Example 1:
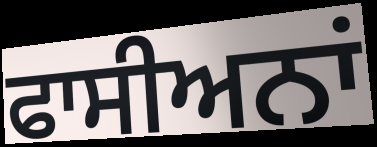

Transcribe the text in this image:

ਫਾਸੀਅਨਾਂ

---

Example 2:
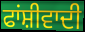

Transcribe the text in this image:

ਫਾਂਸ਼ੀਵਾਦੀ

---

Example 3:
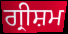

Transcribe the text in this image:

ਗ੍ਰੀਸ਼ਮ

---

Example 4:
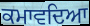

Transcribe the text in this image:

ਕਮਾਵਦਿਆ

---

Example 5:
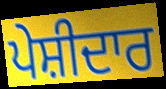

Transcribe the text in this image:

ਪੇਸ਼ੀਦਾਰ